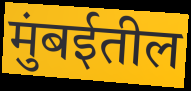
मुंबईतील